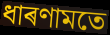
ধাৰণামতে